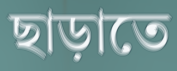
ছাড়াতে